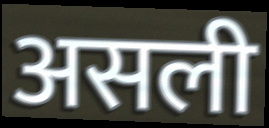
असली